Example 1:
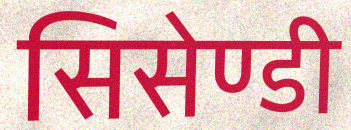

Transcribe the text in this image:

सिसेण्डी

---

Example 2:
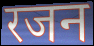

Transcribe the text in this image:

रजन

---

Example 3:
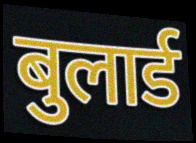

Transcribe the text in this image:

बुलार्ड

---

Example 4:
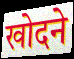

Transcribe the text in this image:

खोदने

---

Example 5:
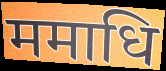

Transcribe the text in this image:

ममाधि